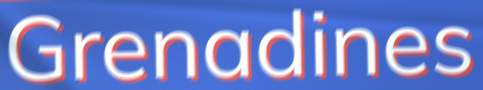
Grenadines